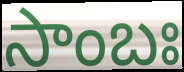
సాంబః